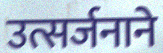
उत्सर्जनाने